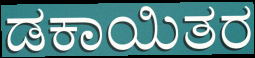
ಡಕಾಯಿತರ